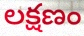
లక్షణం